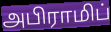
அபிராமிப்